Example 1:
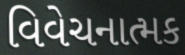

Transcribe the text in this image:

વિવેચનાત્મક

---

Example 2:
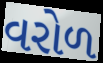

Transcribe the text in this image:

વરોળ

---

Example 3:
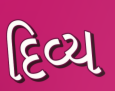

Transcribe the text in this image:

દિવ્ય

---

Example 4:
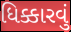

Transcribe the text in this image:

ધિક્કારવું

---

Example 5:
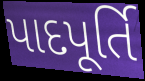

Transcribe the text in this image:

પાદપૂર્તિ